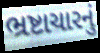
ભ્રષ્ટાચારનું